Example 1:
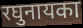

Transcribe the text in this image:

रघुनायका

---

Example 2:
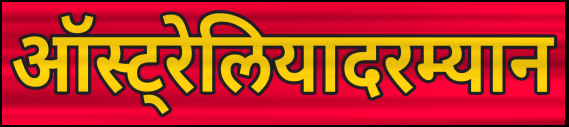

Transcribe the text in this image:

ऑस्ट्रेलियादरम्यान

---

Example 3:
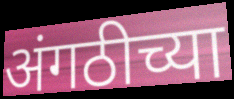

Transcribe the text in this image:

अंगठीच्या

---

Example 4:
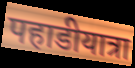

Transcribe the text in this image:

पहाडीयात्रा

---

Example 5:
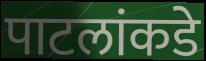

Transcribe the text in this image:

पाटलांकडे